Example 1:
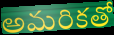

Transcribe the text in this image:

అమరికతో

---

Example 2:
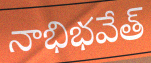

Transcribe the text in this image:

నాభిభవేత్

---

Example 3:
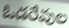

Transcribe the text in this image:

ఓడరేవుల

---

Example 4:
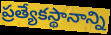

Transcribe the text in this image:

ప్రత్యేకస్థానాన్ని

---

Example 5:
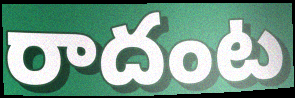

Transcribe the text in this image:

రాదంట